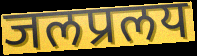
जलप्रलय